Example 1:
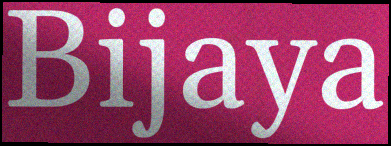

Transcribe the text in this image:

Bijaya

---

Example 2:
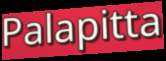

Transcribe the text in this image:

Palapitta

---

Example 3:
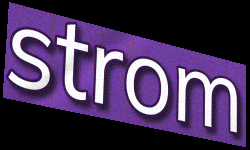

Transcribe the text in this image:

strom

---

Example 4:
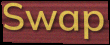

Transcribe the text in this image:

Swap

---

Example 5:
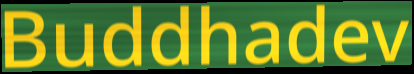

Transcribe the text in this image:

Buddhadev